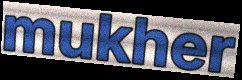
mukher